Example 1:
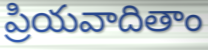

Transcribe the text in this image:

ప్రియవాదితాం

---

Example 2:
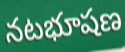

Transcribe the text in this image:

నటభూషణ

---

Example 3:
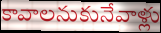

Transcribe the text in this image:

కావాలనుకునేవాళ్లు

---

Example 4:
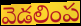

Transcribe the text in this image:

వెడలింప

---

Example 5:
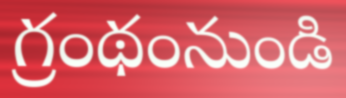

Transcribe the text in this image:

గ్రంథంనుండి